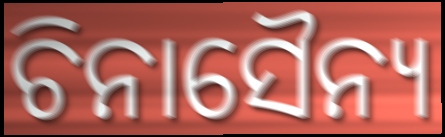
ଚିନାସୈନ୍ୟ